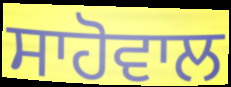
ਸਾਹੋਵਾਲ